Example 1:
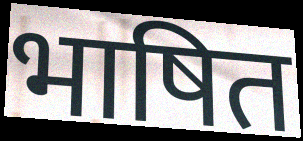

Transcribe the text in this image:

भाषित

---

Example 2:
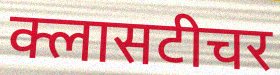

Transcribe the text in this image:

क्लासटीचर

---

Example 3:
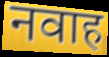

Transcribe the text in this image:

नवाह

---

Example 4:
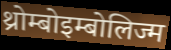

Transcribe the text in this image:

थ्रोम्बोइम्बोलिज्म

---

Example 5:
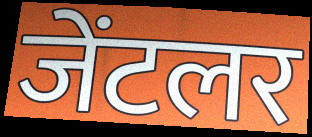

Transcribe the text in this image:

जेंटलर